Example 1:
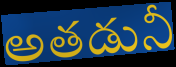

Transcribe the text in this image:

అతడునీ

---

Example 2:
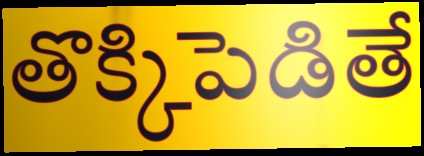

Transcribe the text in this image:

తొక్కిపెడితే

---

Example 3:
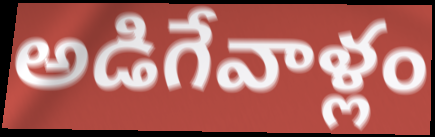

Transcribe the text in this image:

అడిగేవాళ్లం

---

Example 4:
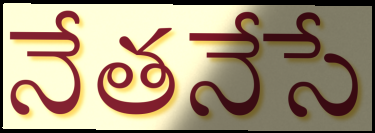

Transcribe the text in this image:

నేతనేసే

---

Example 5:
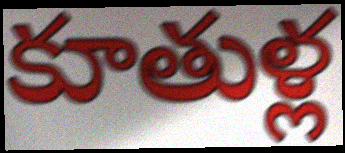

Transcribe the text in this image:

కూతుళ్ల